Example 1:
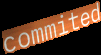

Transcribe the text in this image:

commited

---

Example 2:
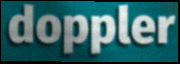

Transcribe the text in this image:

doppler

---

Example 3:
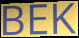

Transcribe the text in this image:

BEK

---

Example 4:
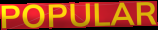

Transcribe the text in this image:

POPULAR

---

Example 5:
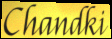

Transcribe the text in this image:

Chandki